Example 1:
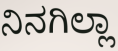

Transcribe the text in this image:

ನಿನಗಿಲ್ಲಾ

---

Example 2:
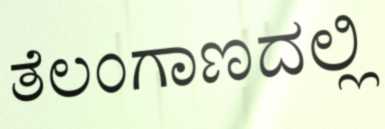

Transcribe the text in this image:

ತೆಲಂಗಾಣದಲ್ಲಿ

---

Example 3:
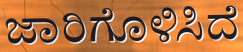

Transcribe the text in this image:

ಜಾರಿಗೊಳಿಸಿದೆ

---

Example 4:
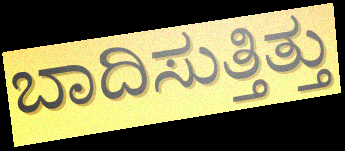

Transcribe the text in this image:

ಬಾದಿಸುತ್ತಿತ್ತು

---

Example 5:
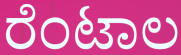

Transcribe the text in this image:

ರೆಂಟಾಲ